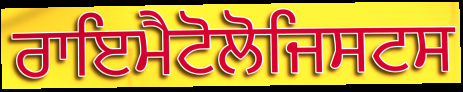
ਰਾਇਮੈਟੋਲੋਜਿਸਟਸ